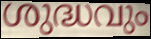
ശുദ്ധവും